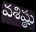
వశిష్ఠు